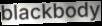
blackbody